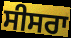
ਸੀਸਰਾ